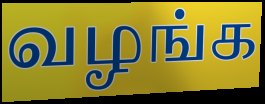
வழங்க